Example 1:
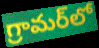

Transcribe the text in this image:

గ్రామర్‌లో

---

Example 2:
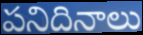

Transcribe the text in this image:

పనిదినాలు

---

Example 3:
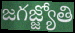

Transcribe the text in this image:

జగజ్జ్యోతి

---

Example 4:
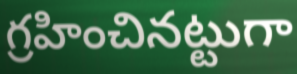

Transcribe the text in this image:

గ్రహించినట్టుగా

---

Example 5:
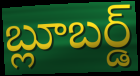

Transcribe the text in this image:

బ్లూబర్డ్